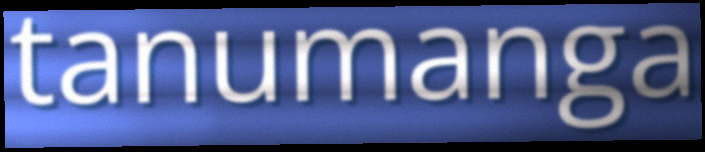
tanumanga